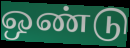
ஒண்டு